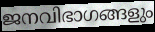
ജനവിഭാഗങ്ങളും